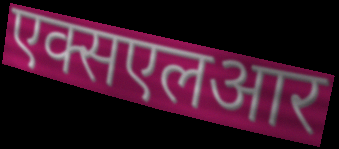
एक्सएलआर